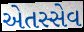
એતસ્સેવ